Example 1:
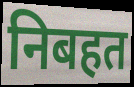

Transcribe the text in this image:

निबहत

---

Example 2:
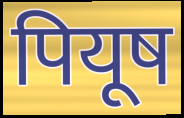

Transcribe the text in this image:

पियूष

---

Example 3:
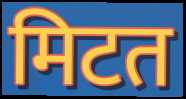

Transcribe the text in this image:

मिटत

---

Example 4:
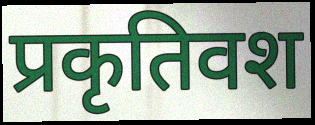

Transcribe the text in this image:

प्रकृतिवश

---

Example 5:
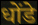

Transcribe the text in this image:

धोंडे